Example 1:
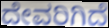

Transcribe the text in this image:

ದೇವರಿಗಿದೆ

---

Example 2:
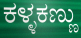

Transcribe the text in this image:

ಕಳ್ಳಕಣ್ಣು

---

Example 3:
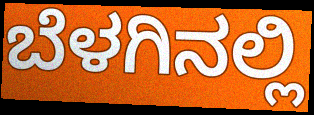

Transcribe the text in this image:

ಬೆಳಗಿನಲ್ಲಿ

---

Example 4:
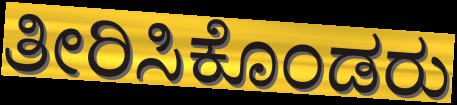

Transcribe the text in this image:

ತೀರಿಸಿಕೊಂಡರು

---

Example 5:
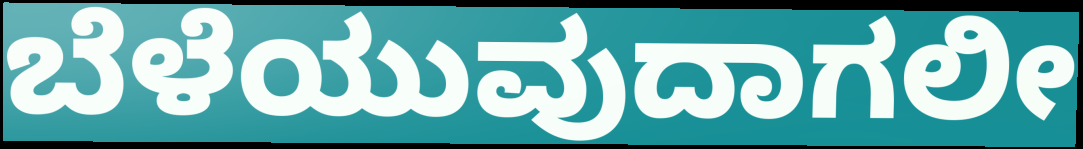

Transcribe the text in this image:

ಬೆಳೆಯುವುದಾಗಲೀ